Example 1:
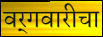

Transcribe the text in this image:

वर्गवारीचा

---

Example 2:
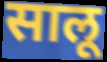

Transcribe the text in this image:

सालू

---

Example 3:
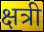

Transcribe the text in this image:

क्षत्री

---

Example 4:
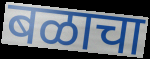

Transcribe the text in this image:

बळाचा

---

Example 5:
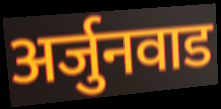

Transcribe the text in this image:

अर्जुनवाड